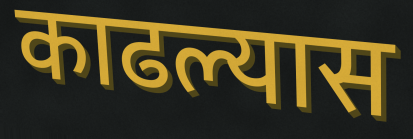
काढल्यास